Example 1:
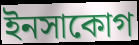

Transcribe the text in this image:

ইনসাকোগ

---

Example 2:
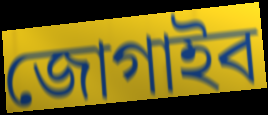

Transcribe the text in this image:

জোগাইব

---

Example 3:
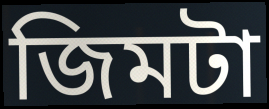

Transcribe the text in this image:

জিমটা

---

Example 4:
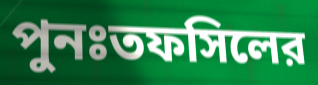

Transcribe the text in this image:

পুনঃতফসিলের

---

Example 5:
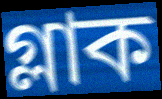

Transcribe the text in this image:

গ্লাক